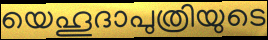
യെഹൂദാപുത്രിയുടെ